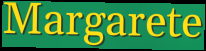
Margarete